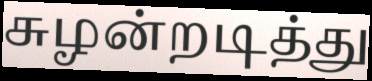
சுழன்றடித்து